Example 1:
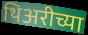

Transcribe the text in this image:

थिअरीच्या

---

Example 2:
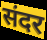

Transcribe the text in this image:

संदर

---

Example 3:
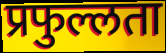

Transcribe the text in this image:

प्रफुल्लता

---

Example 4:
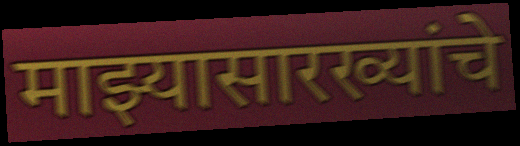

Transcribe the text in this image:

माझ्यासारख्यांचे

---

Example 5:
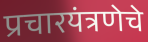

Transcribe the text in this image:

प्रचारयंत्रणेचे